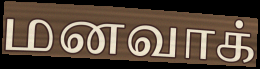
மனவாக்